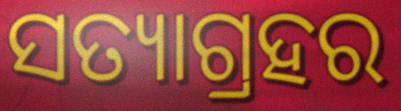
ସତ୍ୟାଗ୍ରହର